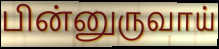
பின்னுருவாய்